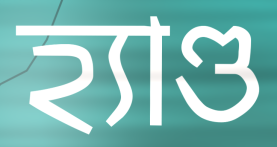
হ্যাণ্ড